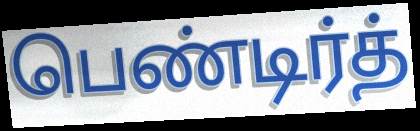
பெண்டிர்த்